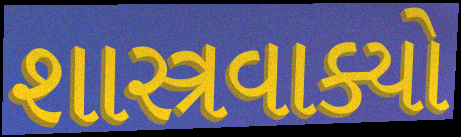
શાસ્ત્રવાક્યો